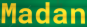
Madan